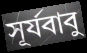
সূর্যবাবু